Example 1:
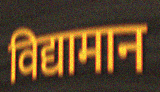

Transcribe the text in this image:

विद्यामान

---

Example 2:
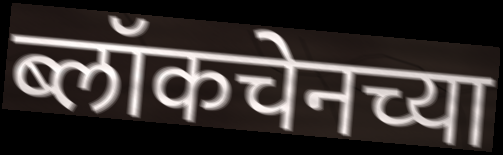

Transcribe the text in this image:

ब्लॉकचेनच्या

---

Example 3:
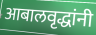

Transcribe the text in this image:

आबालवृद्धांनी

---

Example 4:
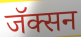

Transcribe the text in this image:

जॅक्सन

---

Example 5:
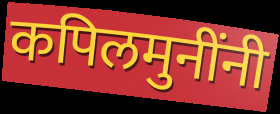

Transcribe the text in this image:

कपिलमुनींनी